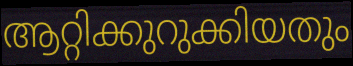
ആറ്റിക്കുറുക്കിയതും